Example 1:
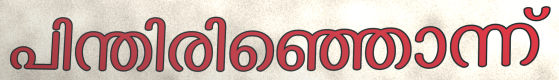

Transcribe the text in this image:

പിന്തിരിഞ്ഞൊന്ന്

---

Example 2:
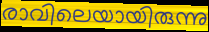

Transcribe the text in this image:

രാവിലെയായിരുന്നു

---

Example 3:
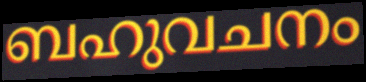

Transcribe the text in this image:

ബഹുവചനം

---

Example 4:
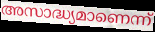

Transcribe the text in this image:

അസാദ്ധ്യമാണെന്ന്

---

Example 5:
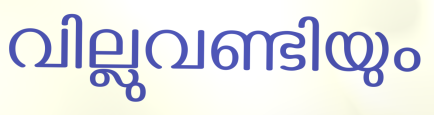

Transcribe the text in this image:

വില്ലുവണ്ടിയും